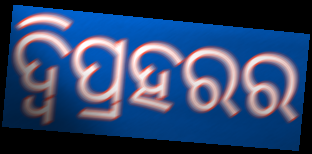
ଦ୍ୱିପ୍ରହରର